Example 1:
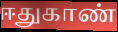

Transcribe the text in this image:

ஈதுகாண்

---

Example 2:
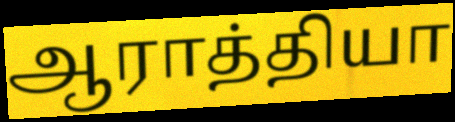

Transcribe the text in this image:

ஆராத்தியா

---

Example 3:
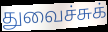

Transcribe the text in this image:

துவைச்சுக்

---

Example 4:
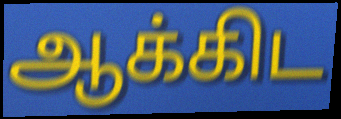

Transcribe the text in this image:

ஆக்கிட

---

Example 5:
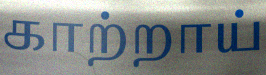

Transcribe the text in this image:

காற்றாய்